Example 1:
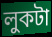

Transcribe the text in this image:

লুকটা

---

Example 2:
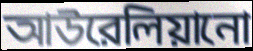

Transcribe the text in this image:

আউরেলিয়ানো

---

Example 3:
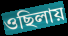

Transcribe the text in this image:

ওছিলায়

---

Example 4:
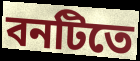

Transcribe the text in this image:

বনটিতে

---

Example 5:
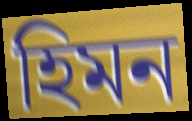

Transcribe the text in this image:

হিমন